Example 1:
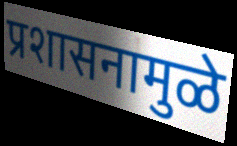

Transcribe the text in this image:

प्रशासनामुळे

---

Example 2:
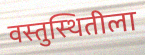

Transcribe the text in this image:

वस्तुस्थितीला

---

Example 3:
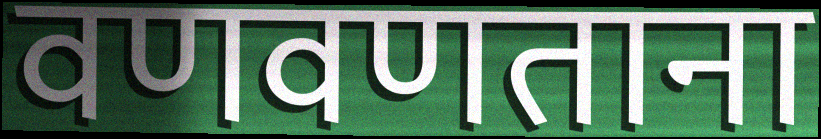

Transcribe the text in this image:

वणवणताना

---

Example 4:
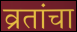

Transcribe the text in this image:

व्रतांचा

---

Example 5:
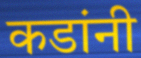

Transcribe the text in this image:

कडांनी